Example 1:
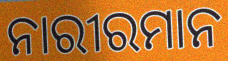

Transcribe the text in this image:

ନାରୀରମାନ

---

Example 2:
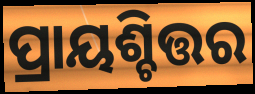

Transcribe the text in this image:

ପ୍ରାୟଶ୍ଚିତ୍ତର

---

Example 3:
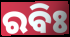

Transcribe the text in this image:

ରବିଃ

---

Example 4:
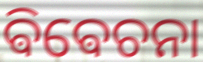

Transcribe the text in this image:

ଵିଵେଚନା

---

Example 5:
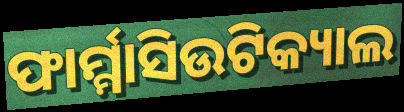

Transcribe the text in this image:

ଫାର୍ମ୍ମାସିଉଟିକ୍ୟାଲ